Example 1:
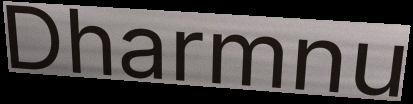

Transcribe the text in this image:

Dharmnu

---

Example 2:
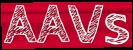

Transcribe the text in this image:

AAVs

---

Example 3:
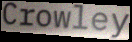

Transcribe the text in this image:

Crowley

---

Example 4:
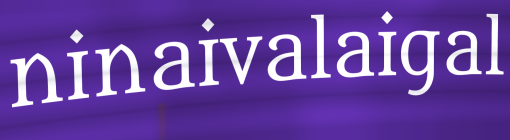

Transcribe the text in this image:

ninaivalaigal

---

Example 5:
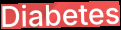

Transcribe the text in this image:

Diabetes